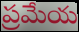
ప్రమేయ